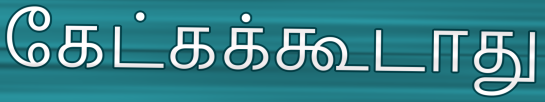
கேட்கக்கூடாது